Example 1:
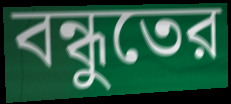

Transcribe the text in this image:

বন্ধুতের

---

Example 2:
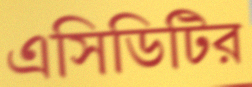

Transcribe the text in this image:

এসিডিটির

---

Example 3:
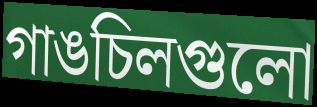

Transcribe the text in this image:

গাঙচিলগুলো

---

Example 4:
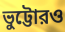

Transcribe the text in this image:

ভুট্টোরও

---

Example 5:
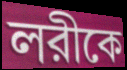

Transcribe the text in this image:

লরীকে